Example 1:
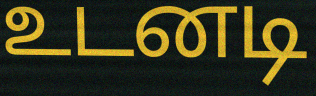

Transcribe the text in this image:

உடனடி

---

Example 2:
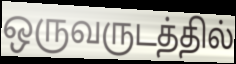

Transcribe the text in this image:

ஒருவருடத்தில்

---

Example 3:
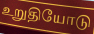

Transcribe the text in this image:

உறுதியோடு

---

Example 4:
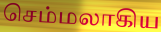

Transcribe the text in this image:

செம்மலாகிய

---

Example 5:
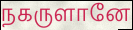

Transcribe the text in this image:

நகருளானே